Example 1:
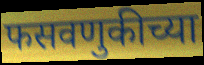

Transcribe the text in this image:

फसवणुकीच्या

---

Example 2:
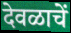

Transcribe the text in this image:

देवळाचें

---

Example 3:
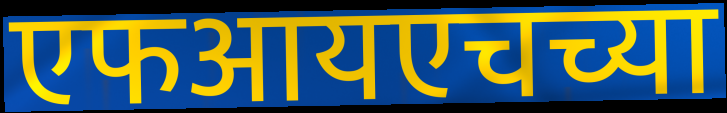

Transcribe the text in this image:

एफआयएचच्या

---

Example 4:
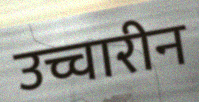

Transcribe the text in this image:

उच्चारीन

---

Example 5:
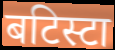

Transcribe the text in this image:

बटिस्टा